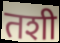
तशी